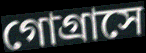
গোগ্রাসে